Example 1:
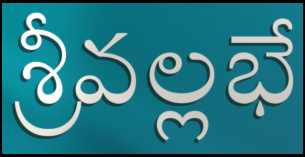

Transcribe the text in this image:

శ్రీవల్లభే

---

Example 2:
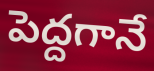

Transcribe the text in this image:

పెద్దగానే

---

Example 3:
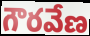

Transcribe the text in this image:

గౌరవేణ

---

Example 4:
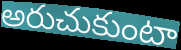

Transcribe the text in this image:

అరుచుకుంటా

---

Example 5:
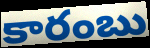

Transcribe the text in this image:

కారంబు